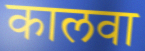
कालवा